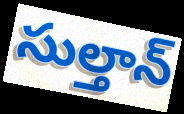
సుల్తాన్